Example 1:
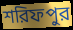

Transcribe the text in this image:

শরিফপুর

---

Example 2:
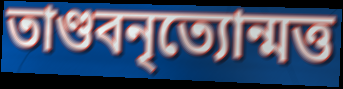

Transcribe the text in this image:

তাণ্ডবনৃত্যোন্মত্ত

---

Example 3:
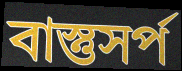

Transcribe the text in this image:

বাস্তুসর্প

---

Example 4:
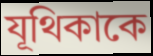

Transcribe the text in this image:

যূথিকাকে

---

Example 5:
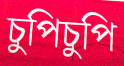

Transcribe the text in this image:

চুপিচুপি